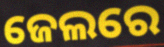
ଜେଲରେ